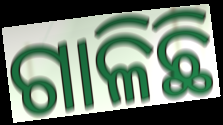
ଗାଳିଛି